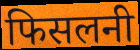
फिसलनी